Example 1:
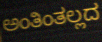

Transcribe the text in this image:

ಅಂತಿಂತಲ್ಲದ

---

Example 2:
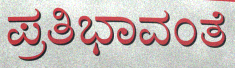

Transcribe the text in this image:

ಪ್ರತಿಭಾವಂತೆ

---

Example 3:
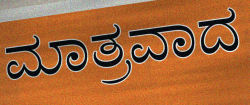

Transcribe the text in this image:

ಮಾತ್ರವಾದ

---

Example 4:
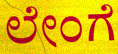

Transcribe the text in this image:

ಲೇಂಗೆ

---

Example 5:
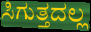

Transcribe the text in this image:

ಸಿಗುತ್ತದಲ್ಲ